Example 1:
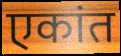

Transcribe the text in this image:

एकांत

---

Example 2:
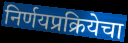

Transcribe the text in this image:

निर्णयप्रक्रियेचा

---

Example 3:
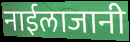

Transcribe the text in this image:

नाईलाजानी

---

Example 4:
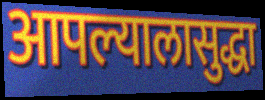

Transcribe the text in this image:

आपल्यालासुद्धा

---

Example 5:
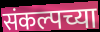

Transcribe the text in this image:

संकल्पच्या